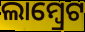
ଲାମ୍ୱ୍ରେଟ